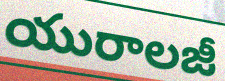
యురాలజీ